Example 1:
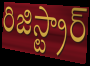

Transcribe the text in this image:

రిజిస్ట్రార్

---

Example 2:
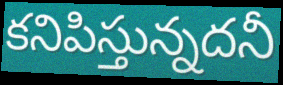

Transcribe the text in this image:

కనిపిస్తున్నదనీ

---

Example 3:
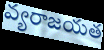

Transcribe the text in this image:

వ్యరాజయత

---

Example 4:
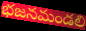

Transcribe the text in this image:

భజనమండలి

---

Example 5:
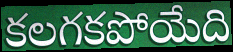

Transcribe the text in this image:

కలగకపోయేది